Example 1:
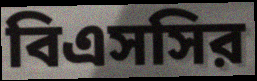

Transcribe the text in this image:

বিএসসির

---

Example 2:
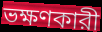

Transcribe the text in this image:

ভক্ষণকারী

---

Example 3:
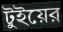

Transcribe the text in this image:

টুইয়ের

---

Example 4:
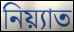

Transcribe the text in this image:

নিয়্যাত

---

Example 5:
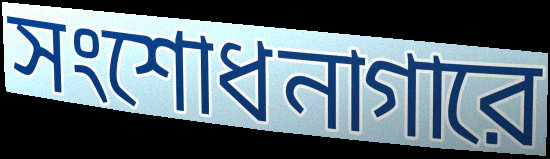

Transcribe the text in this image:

সংশোধনাগারে